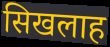
सिखलाह